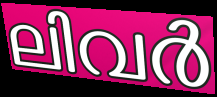
ലിവർ